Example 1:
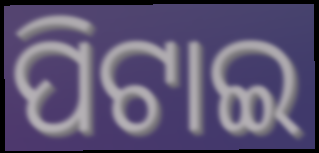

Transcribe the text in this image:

ପିଟାଇ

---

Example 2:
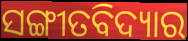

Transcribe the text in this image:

ସଙ୍ଗୀତବିଦ୍ୟାର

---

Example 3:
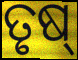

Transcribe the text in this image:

ତୃଷ୍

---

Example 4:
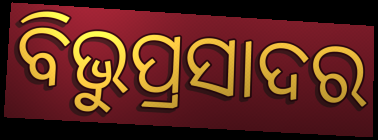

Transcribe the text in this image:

ବିଭୁପ୍ରସାଦର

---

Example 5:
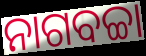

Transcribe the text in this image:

ନାଗବଚ୍ଚା